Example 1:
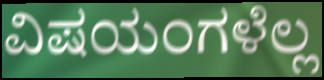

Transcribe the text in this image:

ವಿಷಯಂಗಳೆಲ್ಲ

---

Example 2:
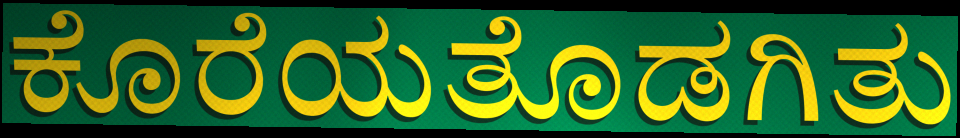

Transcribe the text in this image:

ಕೊರೆಯತೊಡಗಿತು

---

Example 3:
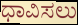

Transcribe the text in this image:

ಧಾವಿಸಲು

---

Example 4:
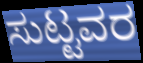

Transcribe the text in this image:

ಸುಟ್ಟವರ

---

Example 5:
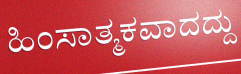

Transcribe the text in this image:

ಹಿಂಸಾತ್ಮಕವಾದದ್ದು